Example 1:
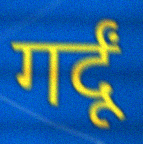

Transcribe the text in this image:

गर्दूं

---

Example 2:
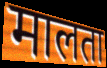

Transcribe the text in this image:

मालता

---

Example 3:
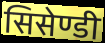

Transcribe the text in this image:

सिसेण्डी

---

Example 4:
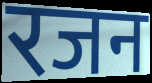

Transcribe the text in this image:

रजन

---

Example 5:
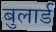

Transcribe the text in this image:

बुलार्ड